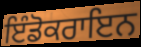
ਇੰਡੋਕਰਾਇਨ